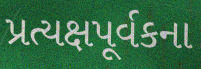
પ્રત્યક્ષપૂર્વકના